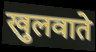
खुलवाते